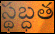
స్థబ్ధత